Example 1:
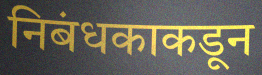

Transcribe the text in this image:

निबंधकाकडून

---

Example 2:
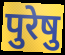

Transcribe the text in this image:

पुरेषु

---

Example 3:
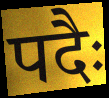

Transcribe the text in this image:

पदैः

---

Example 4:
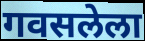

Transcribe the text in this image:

गवसलेला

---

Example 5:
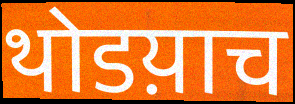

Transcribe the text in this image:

थोडय़ाच